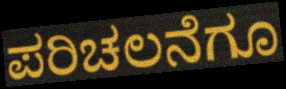
ಪರಿಚಲನೆಗೂ